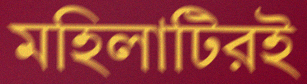
মহিলাটিরই